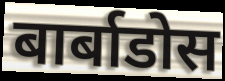
बार्बाडोस